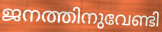
ജനത്തിനുവേണ്ടി